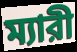
ম্যারী